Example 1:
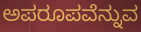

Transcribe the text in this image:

ಅಪರೂಪವೆನ್ನುವ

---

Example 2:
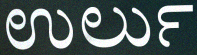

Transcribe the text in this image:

ಉರ್ಲು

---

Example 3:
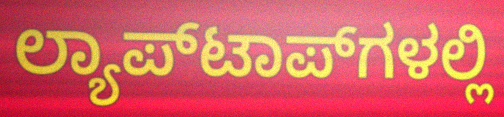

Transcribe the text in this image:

ಲ್ಯಾಪ್‌ಟಾಪ್‌ಗಳಲ್ಲಿ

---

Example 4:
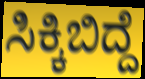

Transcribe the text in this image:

ಸಿಕ್ಕಿಬಿದ್ದೆ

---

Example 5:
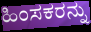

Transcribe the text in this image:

ಹಿಂಸಕರನ್ನು